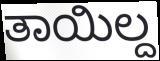
ತಾಯಿಲ್ದ